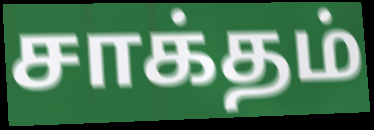
சாக்தம்